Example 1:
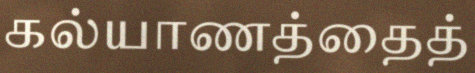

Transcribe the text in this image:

கல்யாணத்தைத்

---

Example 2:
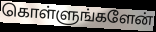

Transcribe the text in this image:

கொள்ளுங்களேன்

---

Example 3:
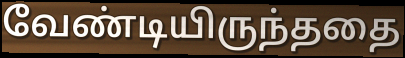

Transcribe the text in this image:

வேண்டியிருந்ததை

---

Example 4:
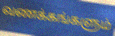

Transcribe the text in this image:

வணக்கங்களும்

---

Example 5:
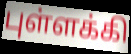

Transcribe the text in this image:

புள்ளக்கி